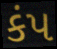
કંપ